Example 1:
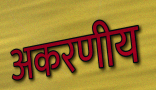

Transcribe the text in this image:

अकरणीय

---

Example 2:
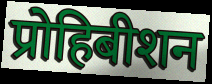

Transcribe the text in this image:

प्रोहिबीशन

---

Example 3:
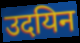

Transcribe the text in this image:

उदयिन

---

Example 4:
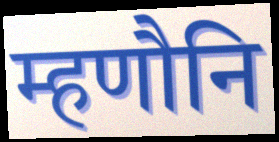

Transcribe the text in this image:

म्हणौनि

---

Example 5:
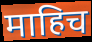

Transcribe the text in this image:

माहिच